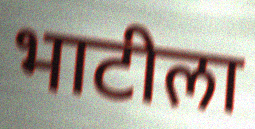
भाटीला